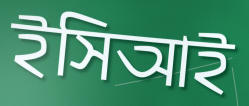
ইসিআই